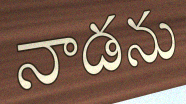
నాడను